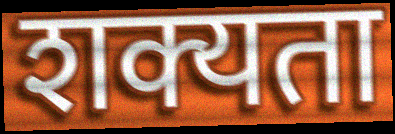
शक्‍यता